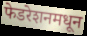
फेडरेशनमधून